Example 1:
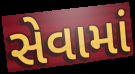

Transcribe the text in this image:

સેવામાં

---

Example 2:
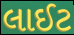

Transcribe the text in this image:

લાઈટ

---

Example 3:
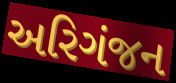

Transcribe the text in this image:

અરિગંજન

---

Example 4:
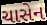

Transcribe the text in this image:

ચાસેન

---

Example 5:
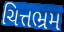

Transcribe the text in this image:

ચિત્તભ્રમ